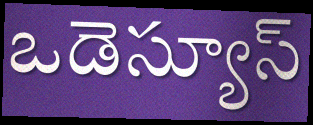
ఒడెస్యూస్